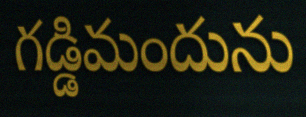
గడ్డిమందును